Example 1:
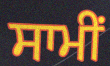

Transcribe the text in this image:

ਸਾਮੀਂ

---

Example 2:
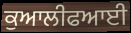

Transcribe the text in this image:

ਕੁਆਲੀਫਆਈ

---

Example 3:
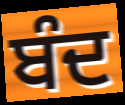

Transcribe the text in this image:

ਬੰਦ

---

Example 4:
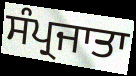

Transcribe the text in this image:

ਸੰਪ੍ਰਜਾਤਾ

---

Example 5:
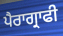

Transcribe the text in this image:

ਪੈਰਾਗ੍ਰਾਫੀ